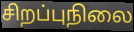
சிறப்புநிலை